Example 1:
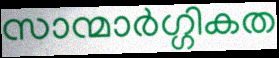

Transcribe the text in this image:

സാന്മാർഗ്ഗികത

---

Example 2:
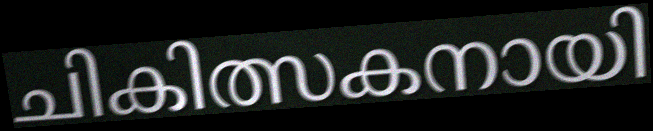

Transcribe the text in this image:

ചികിത്സകനായി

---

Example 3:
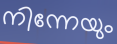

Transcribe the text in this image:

നിന്നേയും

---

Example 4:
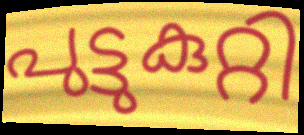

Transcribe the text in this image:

പുട്ടുകുറ്റി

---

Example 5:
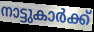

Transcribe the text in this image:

നാട്ടുകാർക്ക്